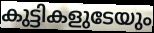
കുട്ടികളുടേയും